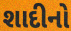
શાદીનો